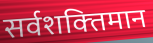
सर्वशक्‍तिमान